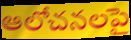
ఆలోచనలపై